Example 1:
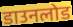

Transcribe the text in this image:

डाउनलोड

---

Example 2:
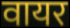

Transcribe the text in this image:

वायर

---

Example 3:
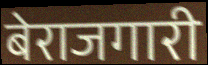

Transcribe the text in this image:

बेराजगारी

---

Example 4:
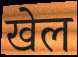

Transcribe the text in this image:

खेल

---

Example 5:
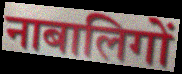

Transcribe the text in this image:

नाबालिगों